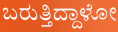
ಬರುತ್ತಿದ್ದಾಳೋ